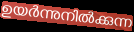
ഉയർന്നുനിൽക്കുന്ന